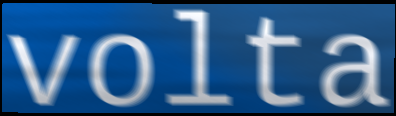
volta